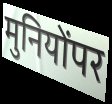
मुनियोंपर